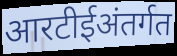
आरटीईअंतर्गत